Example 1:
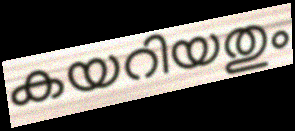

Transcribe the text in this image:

കയറിയതും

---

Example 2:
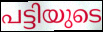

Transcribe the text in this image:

പട്ടിയുടെ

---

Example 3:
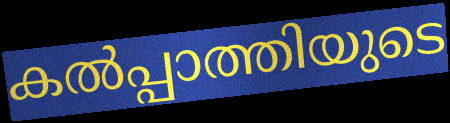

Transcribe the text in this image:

കൽപ്പാത്തിയുടെ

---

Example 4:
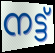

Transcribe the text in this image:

നട്ട്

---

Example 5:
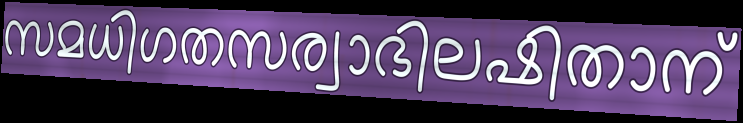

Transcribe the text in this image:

സമധിഗതസര്വാഭിലഷിതാന്